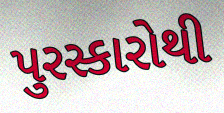
પુરસ્કારોથી